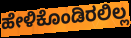
ಹೇಳಿಕೊಂಡಿರಲಿಲ್ಲ